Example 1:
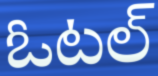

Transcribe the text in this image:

ఓటల్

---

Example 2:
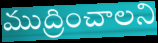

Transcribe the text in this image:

ముద్రించాలని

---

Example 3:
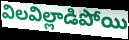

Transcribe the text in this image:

విలవిల్లాడిపోయి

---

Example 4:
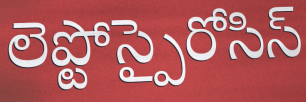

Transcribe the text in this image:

లెప్టోస్పైరోసిస్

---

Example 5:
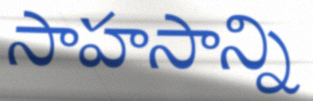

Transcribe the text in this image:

సాహసాన్ని